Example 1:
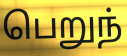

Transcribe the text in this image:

பெறுந்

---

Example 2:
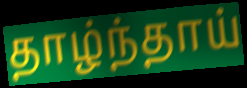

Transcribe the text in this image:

தாழ்ந்தாய்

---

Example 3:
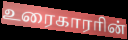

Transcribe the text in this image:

உரைகாரரின்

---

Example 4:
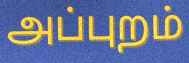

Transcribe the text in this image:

அப்புறம்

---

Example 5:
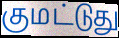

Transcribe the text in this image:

குமட்டுது